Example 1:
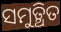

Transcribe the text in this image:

ସମୁତ୍ଥିତ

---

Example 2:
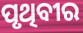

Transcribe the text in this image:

ପୃଥିବୀର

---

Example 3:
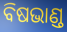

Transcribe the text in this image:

ବିଷଭାଣ୍ଡ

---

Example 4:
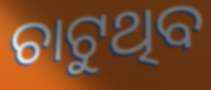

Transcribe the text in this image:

ଚାଟୁଥିବ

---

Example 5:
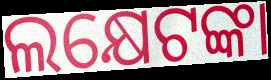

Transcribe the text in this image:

ଲକ୍ଷେଟଙ୍କା